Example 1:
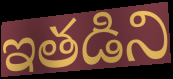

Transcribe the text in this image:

ఇతడిని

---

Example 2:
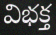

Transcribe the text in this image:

విభక్త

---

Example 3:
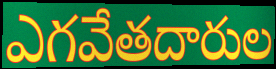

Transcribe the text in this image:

ఎగవేతదారుల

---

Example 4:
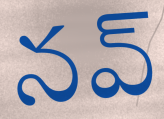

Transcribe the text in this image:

నవ్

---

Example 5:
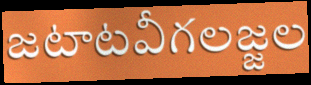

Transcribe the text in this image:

జటాటవీగలజ్జల